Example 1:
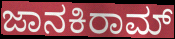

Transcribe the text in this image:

ಜಾನಕಿರಾಮ್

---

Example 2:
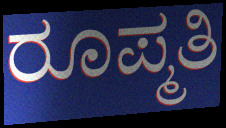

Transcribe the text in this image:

ರೂಪ್ಮತಿ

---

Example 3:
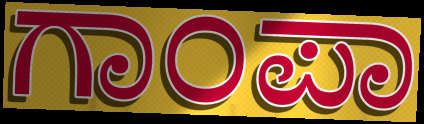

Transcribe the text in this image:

ಗಾಂಪಾ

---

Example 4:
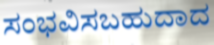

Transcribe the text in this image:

ಸಂಭವಿಸಬಹುದಾದ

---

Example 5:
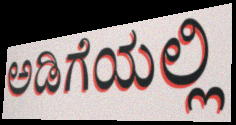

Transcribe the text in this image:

ಅಡಿಗೆಯಲ್ಲಿ